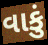
વાકું